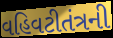
વહિવટીતંત્રની